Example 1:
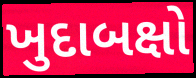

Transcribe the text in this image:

ખુદાબક્ષો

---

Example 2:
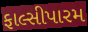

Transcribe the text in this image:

ફાલ્સીપારમ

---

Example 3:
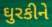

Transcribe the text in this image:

ઘુરકીને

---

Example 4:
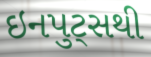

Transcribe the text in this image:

ઇનપુટ્સથી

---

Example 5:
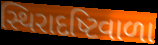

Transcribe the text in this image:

સ્થિરાદષ્ટિવાળા